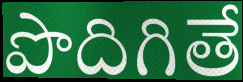
పొదిగితే